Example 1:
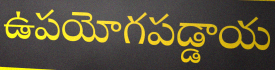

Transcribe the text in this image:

ఉపయోగపడ్డాయ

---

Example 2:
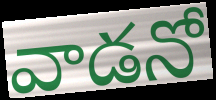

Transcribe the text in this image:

వాడనో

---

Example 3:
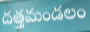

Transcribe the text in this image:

దత్తమండలం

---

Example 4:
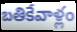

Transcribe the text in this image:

బతికేవాళ్లం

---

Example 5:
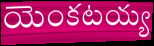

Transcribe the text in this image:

యెంకటయ్య